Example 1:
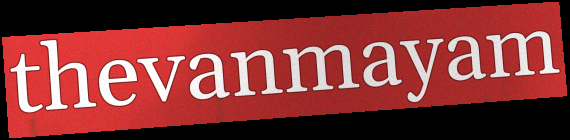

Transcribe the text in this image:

thevanmayam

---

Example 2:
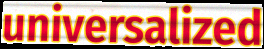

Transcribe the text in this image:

universalized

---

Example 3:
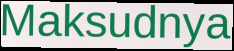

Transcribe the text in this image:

Maksudnya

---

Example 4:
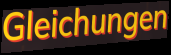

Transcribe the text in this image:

Gleichungen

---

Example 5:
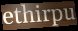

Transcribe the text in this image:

ethirpu